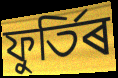
ফুৰ্তিৰ